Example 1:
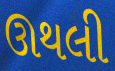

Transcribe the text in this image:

ઊથલી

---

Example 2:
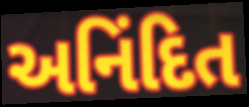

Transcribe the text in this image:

અનિંદિત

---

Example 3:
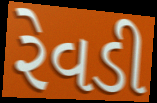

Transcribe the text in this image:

રેવડી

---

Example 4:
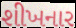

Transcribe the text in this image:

શીખનાર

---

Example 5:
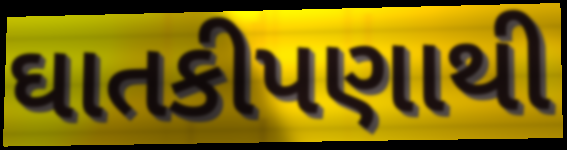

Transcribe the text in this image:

ઘાતકીપણાથી